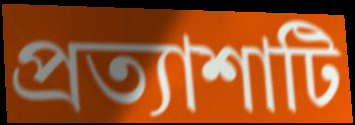
প্রত্যাশাটি